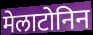
मेलाटोनिन